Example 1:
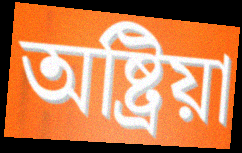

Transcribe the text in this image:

অষ্ট্ৰিয়া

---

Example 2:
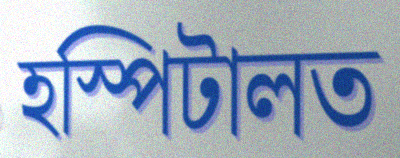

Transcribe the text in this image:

হস্পিটালত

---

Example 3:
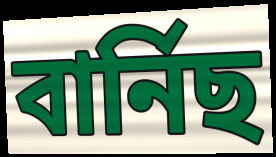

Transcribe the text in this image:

বাৰ্নিছ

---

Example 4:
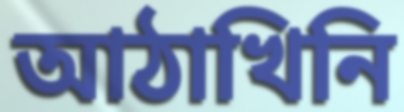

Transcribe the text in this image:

আঠাখিনি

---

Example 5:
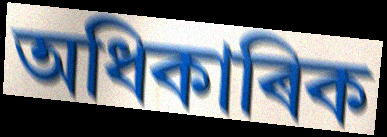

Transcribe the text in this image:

অধিকাৰিক